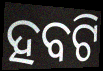
ହବଟି